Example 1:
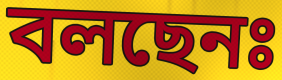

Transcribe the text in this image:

বলছেনঃ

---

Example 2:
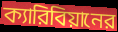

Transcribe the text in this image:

ক্যারিবিয়ানের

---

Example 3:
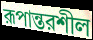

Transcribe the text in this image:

রূপান্তরশীল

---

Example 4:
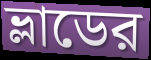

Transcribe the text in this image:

ভ্লাডের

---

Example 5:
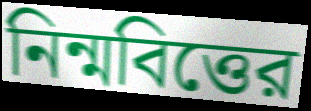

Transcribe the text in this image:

নিন্মবিত্তের